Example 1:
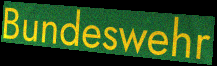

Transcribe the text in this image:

Bundeswehr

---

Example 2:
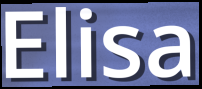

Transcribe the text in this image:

Elisa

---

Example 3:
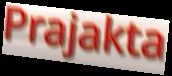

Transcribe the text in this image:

Prajakta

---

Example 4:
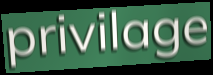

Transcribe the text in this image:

privilage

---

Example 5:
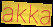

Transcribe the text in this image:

akka